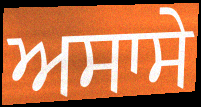
ਅਸਾਸੇ